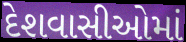
દેશવાસીઓમાં